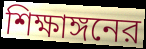
শিক্ষাঙ্গনের